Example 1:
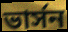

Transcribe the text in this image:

ভার্সন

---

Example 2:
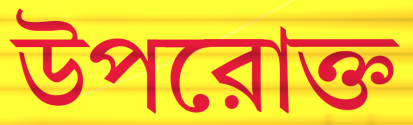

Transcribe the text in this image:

উপরোক্ত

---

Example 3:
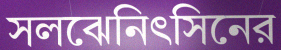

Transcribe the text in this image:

সলঝেনিৎসিনের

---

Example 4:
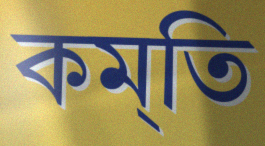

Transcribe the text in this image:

কম্‌তি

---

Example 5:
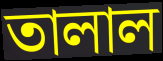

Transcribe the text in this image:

তালাল